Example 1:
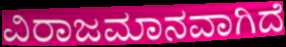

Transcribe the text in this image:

ವಿರಾಜಮಾನವಾಗಿದೆ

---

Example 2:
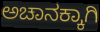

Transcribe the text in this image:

ಅಚಾನಕ್ಕಾಗಿ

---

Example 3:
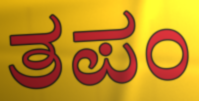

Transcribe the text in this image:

ತಪಂ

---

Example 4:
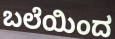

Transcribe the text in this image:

ಬಲೆಯಿಂದ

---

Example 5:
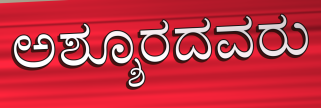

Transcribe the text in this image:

ಅಶ್ಶೂರದವರು